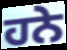
ਹਨੇ